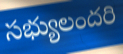
సభ్యులందరి